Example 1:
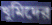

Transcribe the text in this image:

খুমিদের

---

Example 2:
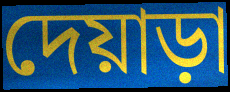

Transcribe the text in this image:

দেয়াড়া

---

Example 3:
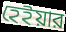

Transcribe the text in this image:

হেইয়ার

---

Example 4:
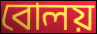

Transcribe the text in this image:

বোলয়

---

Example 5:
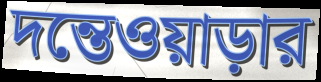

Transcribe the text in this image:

দন্তেওয়াড়ার